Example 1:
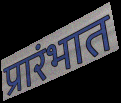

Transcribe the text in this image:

प्रारंभात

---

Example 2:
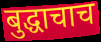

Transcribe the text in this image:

बुद्धाचाच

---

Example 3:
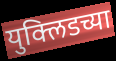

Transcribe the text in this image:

युक्लिडच्या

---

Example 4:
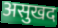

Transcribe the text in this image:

असुखद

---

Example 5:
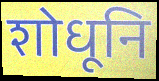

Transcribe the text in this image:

शोधूनि